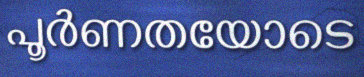
പൂർണതയോടെ